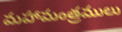
మహామంత్రములు